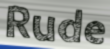
Rude